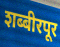
शब्बीरपूर